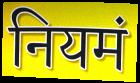
नियमं